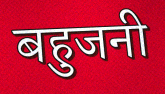
बहुजनी